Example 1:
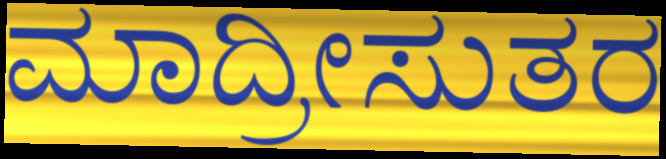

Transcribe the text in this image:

ಮಾದ್ರೀಸುತರ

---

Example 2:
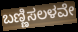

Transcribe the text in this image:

ಬಣ್ಣಿಸಲಳವೇ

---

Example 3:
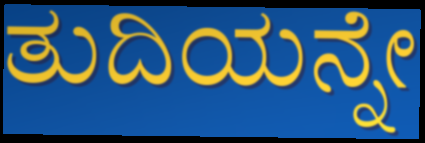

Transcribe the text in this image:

ತುದಿಯನ್ನೇ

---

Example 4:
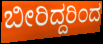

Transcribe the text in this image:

ಬೀರಿದ್ದರಿಂದ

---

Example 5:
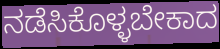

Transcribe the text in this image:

ನಡೆಸಿಕೊಳ್ಳಬೇಕಾದ